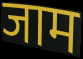
जाम